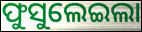
ଫୁସୁଲେଇଲା